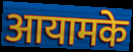
आयामके